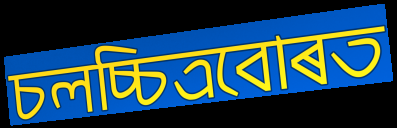
চলচ্চিত্ৰবোৰত